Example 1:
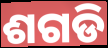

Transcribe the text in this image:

ଶଗଡି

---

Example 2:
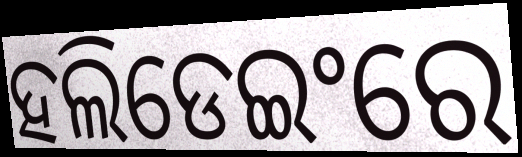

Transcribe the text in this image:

ହଲିଡେଇଂରେ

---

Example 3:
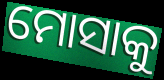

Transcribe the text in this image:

ମୋସାକୁ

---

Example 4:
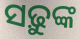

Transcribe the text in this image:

ସଢ଼ୁଙ୍କ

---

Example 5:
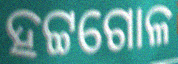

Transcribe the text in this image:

ହଟ୍ଟଗୋଳ